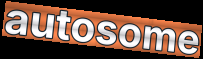
autosome